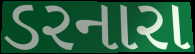
ડરનારા